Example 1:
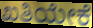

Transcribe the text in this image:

ಖತಿಯೇಕೆ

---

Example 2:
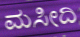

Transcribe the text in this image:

ಮಸೀದಿ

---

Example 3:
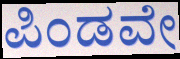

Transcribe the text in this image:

ಪಿಂಡವೇ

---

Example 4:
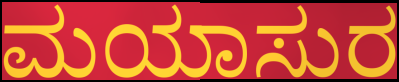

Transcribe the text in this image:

ಮಯಾಸುರ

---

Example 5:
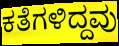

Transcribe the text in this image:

ಕತೆಗಳಿದ್ದವು